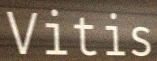
Vitis